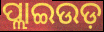
ପ୍ଲାଇଉଡ଼